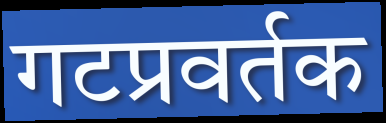
गटप्रवर्तक